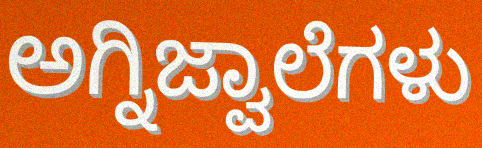
ಅಗ್ನಿಜ್ವಾಲೆಗಳು